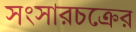
সংসারচক্রের